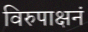
विरुपाक्षनं